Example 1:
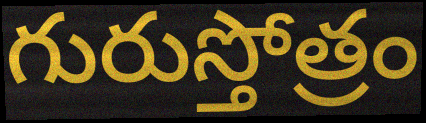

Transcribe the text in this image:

గురుస్తోత్రం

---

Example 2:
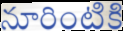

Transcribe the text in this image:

నూరింటికి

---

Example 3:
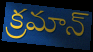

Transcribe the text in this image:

క్రమాన్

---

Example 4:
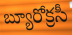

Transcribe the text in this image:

బ్యూరోక్రసీ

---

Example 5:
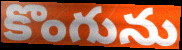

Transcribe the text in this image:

కొంగును